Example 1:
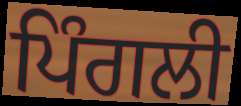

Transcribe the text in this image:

ਪਿੰਗਲੀ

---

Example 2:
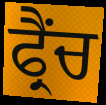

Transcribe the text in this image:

ਫ੍ਰੈਂਚ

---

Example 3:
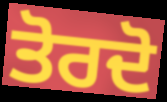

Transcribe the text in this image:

ਤੋਰਦੋ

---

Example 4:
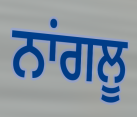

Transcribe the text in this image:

ਨਾਂਗਲੂ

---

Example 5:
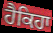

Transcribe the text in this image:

ਹੈਕਿਹਾ